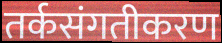
तर्कसंगतीकरण